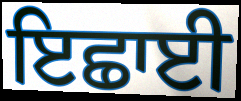
ਇਛਾਈ